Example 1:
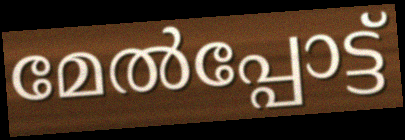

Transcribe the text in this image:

മേൽപ്പോട്ട്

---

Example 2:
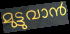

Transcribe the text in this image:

മുട്ടുവാൻ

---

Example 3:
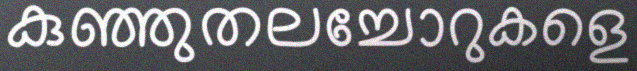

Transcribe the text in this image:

കുഞ്ഞുതലച്ചോറുകളെ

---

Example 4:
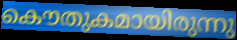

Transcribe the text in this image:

കൌതുകമായിരുന്നു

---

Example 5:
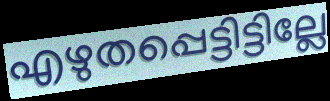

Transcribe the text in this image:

എഴുതപ്പെട്ടിട്ടില്ലേ